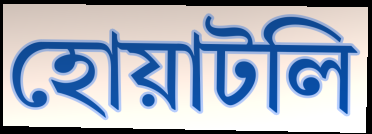
হোয়াটলি